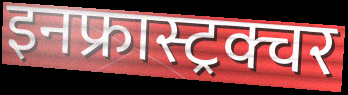
इनफ्रास्ट्रक्चर